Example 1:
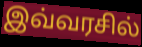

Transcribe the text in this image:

இவ்வரசில்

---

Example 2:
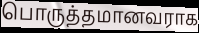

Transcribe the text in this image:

பொருத்தமானவராக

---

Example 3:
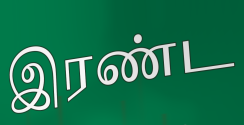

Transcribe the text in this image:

இரண்ட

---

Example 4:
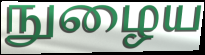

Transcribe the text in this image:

நுழைய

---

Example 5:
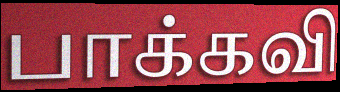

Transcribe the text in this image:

பாக்கவி